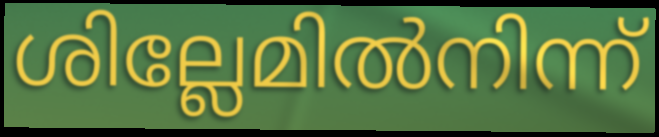
ശില്ലേമിൽനിന്ന്